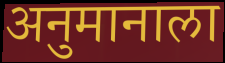
अनुमानाला